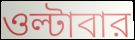
ওল্টাবার